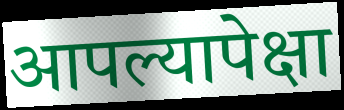
आपल्यापेक्षा